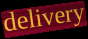
delivery